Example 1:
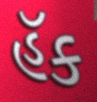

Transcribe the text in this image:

હૅક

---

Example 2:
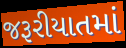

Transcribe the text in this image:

જરૂરીયાતમાં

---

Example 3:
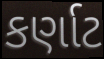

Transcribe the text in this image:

કર્ણાટ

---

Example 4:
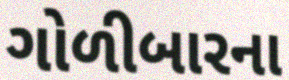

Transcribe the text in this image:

ગોળીબારના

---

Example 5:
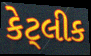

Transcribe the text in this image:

કેટ્લીક